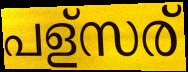
പള്സര്